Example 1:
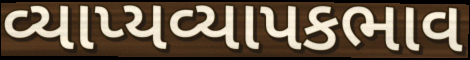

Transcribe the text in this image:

વ્યાપ્યવ્યાપકભાવ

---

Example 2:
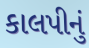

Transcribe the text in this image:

કાલપીનું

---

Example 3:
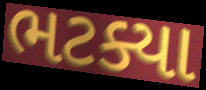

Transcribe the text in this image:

ભટક્યા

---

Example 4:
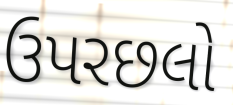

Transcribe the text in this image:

ઉપરછલો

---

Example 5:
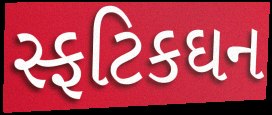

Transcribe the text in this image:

સ્ફટિકઘન